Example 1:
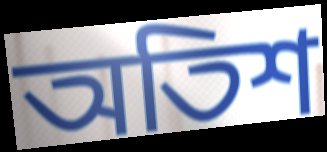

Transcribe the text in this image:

অতিশ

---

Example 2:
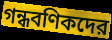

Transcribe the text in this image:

গন্ধবণিকদের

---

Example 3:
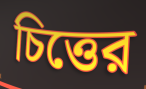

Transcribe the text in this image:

চিত্তের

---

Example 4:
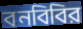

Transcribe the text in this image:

বনবিবির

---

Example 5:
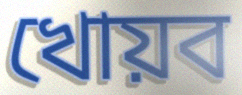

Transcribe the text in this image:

খোয়ব